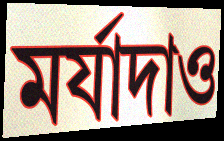
মর্যাদাও